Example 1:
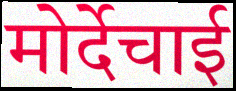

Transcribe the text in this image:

मोर्देचाई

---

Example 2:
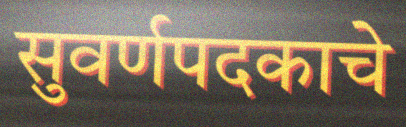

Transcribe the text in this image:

सुवर्णपदकाचे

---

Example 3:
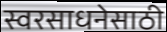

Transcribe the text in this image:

स्वरसाधनेसाठी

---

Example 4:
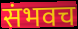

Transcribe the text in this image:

संभवच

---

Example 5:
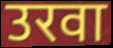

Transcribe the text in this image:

उरवा